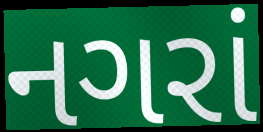
નગરાં